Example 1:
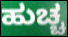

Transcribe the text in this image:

ಹುಚ್ಚ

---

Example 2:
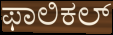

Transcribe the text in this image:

ಫಾಲಿಕಲ್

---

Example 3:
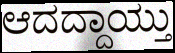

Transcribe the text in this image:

ಆದದ್ದಾಯ್ತು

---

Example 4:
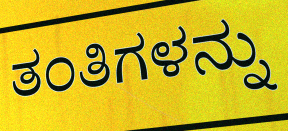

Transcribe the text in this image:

ತಂತಿಗಳನ್ನು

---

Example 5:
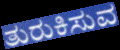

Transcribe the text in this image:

ತುರುಕಿಸುವ